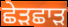
ਛੇੜਛਾੜ